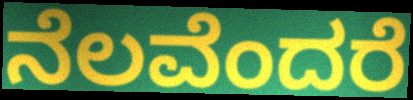
ನೆಲವೆಂದರೆ